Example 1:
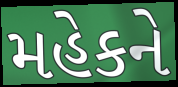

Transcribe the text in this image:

મહેકને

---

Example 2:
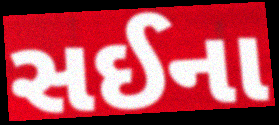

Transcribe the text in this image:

સઈના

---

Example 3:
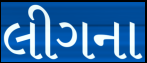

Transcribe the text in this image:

લીગના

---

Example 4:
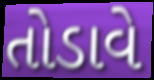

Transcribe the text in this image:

તોડાવે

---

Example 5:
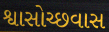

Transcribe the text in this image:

શ્વાસોચ્છવાસ